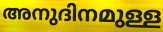
അനുദിനമുള്ള